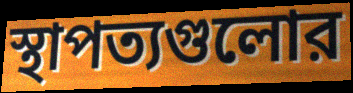
স্থাপত্যগুলোর